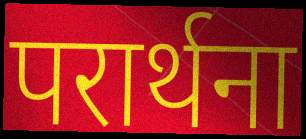
परार्थना